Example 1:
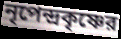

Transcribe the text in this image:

নৃপেন্দ্রকৃষ্ণের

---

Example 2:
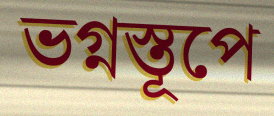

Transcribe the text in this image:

ভগ্নস্তূপে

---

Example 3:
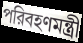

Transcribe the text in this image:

পরিবহণমন্ত্রী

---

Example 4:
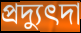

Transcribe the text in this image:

প্রদ্যুৎদা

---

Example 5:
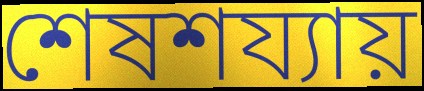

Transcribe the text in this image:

শেষশয্যায়